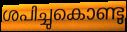
ശപിച്ചുകൊണ്ടു